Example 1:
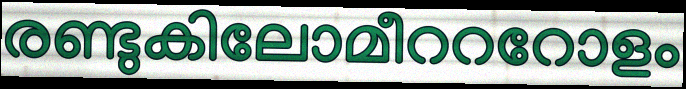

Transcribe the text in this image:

രണ്ടുകിലോമീറററോളം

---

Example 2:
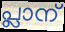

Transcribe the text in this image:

പ്ലാന്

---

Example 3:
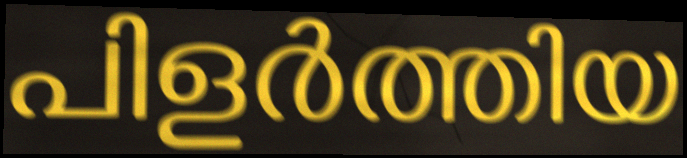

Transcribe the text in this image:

പിളർത്തിയ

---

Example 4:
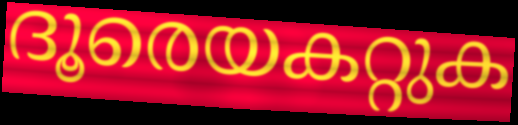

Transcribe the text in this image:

ദൂരെയകറ്റുക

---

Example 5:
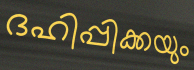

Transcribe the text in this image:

ദഹിപ്പിക്കയും